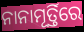
ନାନାମୂର୍ତ୍ତିରେ